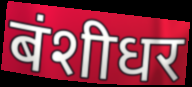
बंशीधर